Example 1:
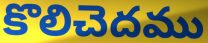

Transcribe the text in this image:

కొలిచెదము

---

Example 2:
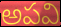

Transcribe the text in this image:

అపవి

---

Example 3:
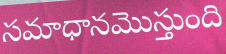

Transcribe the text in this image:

సమాధానమొస్తుంది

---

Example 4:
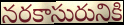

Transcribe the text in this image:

నరకాసురునికి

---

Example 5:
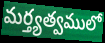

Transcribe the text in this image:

మర్త్యత్వములో